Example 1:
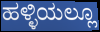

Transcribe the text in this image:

ಹಳ್ಳಿಯಲ್ಲೂ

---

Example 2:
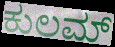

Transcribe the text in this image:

ಕುಲಮ್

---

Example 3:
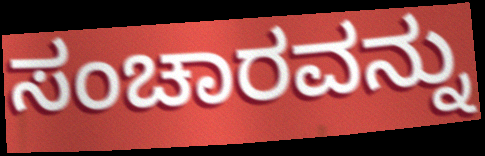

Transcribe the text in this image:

ಸಂಚಾರವನ್ನು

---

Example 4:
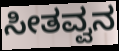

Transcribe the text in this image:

ಸೀತವ್ವನ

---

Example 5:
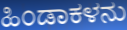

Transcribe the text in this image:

ಹಿಂಡಾಕಳನು